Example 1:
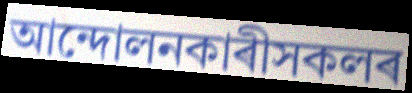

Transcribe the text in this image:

আন্দোলনকাৰীসকলৰ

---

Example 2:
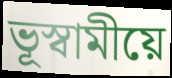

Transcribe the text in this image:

ভূস্বামীয়ে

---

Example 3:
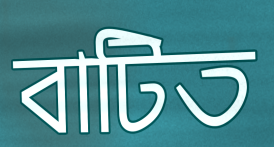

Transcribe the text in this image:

বাটিত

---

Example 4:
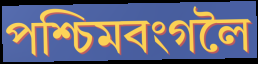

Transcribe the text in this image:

পশ্চিমবংগলৈ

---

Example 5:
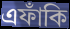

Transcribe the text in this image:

এফাঁকি